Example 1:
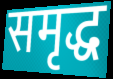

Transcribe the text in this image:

समृद्ध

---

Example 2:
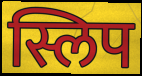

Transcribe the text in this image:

स्लिप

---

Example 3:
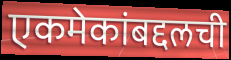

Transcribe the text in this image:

एकमेकांबद्दलची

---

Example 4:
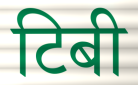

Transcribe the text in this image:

टिबी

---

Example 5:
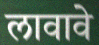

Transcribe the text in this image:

लावावे